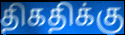
திகதிக்கு